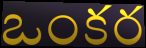
ఒంకర